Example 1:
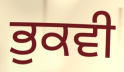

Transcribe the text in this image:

ਭੁਕਵੀ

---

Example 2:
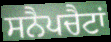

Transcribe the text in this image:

ਸਨੈਪਚੈਟਾਂ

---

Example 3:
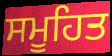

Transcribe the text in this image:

ਸਮੂਹਿਤ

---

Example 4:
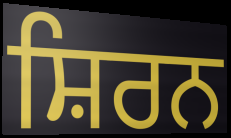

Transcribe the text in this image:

ਸ਼ਿਰਨ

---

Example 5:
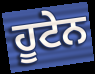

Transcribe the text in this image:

ਹੂਟੇਨ